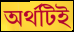
অর্থটিই